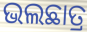
ଭଲଛାତ୍ର